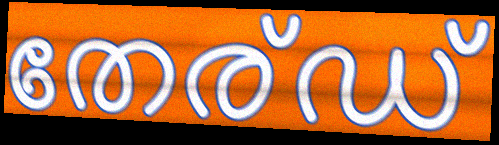
തേര്ഡ്